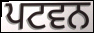
ਪਟਵਨ